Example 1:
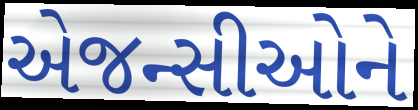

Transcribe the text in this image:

એજન્સીઓને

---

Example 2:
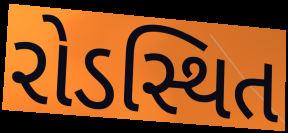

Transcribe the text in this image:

રોડસ્થિત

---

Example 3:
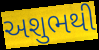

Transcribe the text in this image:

અશુભથી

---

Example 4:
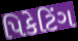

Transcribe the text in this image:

પિકેટિંગ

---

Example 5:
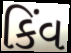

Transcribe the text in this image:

કિંવ